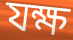
যক্ষ